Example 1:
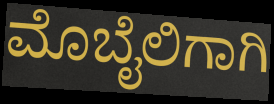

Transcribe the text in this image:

ಮೊಬೈಲಿಗಾಗಿ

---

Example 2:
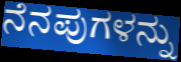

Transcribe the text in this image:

ನೆನಪುಗಳನ್ನು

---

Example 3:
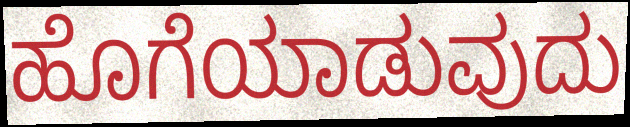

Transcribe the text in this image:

ಹೊಗೆಯಾಡುವುದು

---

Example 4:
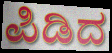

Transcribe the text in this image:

ಪಿಡಿದ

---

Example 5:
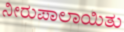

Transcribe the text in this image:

ನೀರುಪಾಲಾಯಿತು